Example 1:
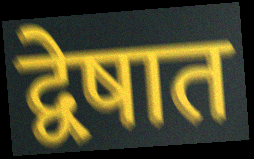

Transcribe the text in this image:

द्वेषात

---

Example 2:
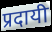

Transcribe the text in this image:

प्रदायी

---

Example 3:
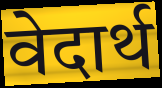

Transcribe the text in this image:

वेदार्थ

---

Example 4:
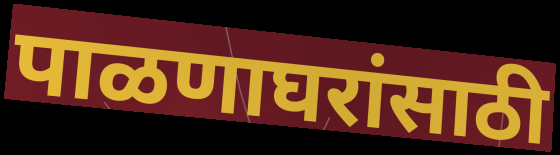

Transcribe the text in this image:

पाळणाघरांसाठी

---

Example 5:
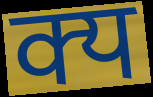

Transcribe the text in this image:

क्य